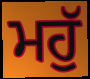
ਮਹੁੱ